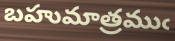
బహుమాత్రముఁ